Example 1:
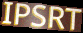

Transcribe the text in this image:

IPSRT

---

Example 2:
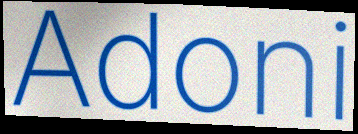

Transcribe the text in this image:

Adoni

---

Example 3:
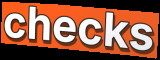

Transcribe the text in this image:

checks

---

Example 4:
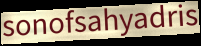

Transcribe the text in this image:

sonofsahyadris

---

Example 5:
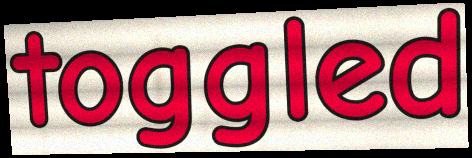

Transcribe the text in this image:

toggled